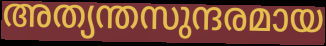
അത്യന്തസുന്ദരമായ